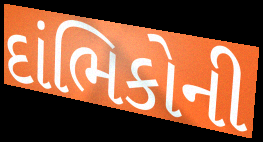
દાંભિકોની